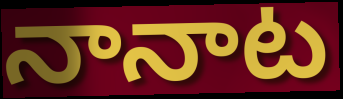
నానాట